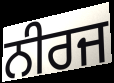
ਨੀਰਜ